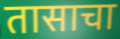
तासाचा